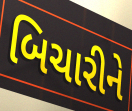
બિચારીને